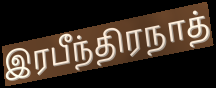
இரபீந்திரநாத்